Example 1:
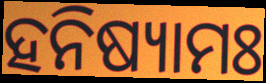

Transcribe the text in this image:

ହନିଷ୍ୟାମଃ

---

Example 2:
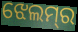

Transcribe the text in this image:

ଝେଲମ୍‌ର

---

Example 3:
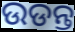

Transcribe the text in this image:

ଉଡନ୍ତ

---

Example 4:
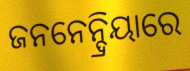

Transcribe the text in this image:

ଜନନେନ୍ଦ୍ରିୟାରେ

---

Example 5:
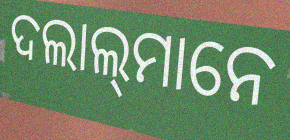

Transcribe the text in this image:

ଦଲାଲ୍‍ମାନେ